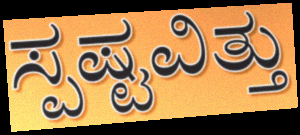
ಸ್ಪಷ್ಟವಿತ್ತು